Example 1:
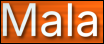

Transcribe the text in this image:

Mala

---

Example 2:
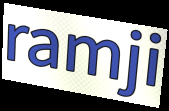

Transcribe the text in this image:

ramji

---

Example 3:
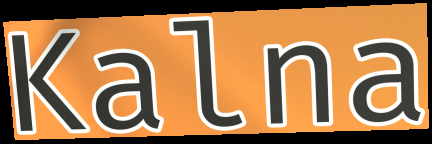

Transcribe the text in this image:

Kalna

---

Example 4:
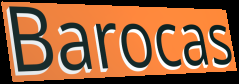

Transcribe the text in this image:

Barocas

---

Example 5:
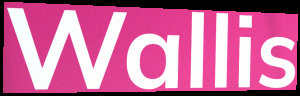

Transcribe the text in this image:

Wallis